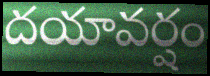
దయావర్షం